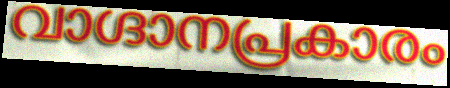
വാഗ്ദാനപ്രകാരം